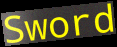
Sword